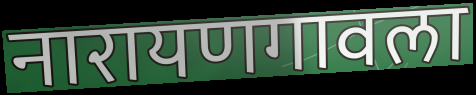
नारायणगावला